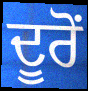
ਦੂਰੋਂ